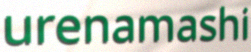
urenamashi